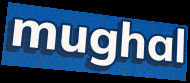
mughal